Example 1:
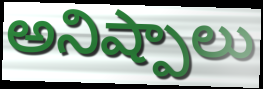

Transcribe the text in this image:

అనిష్పాలు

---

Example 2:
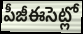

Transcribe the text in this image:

పీజీఈసెట్లో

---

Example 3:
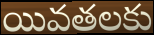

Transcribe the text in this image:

యివతలకు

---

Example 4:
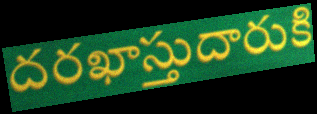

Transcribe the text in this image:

దరఖాస్తుదారుకి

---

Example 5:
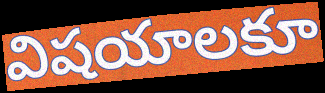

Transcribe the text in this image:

విషయాలకూ